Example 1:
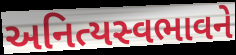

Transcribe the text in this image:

અનિત્યસ્વભાવને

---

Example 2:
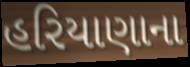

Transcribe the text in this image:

હરિયાણાના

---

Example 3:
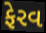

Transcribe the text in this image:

ફેરવ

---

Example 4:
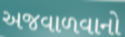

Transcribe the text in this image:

અજવાળવાનો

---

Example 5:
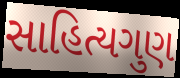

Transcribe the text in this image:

સાહિત્યગુણ